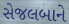
સેજલબાને